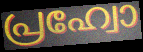
പ്രഹ്വോ